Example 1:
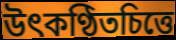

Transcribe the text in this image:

উৎকণ্ঠিতচিত্তে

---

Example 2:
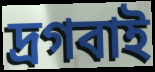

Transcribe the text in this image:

দ্রগবাই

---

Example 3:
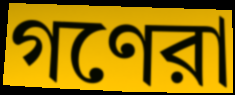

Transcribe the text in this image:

গণেরা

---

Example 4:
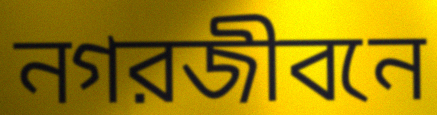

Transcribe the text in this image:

নগরজীবনে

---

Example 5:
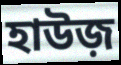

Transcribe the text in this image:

হাউজ়